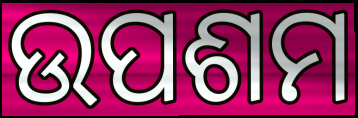
ଉପଶମ